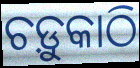
ଚଡ଼ୁକାଠି